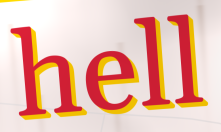
hell